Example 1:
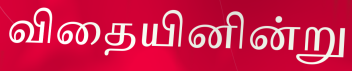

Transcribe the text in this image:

விதையினின்று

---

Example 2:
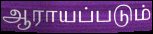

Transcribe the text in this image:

ஆராயப்படும்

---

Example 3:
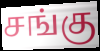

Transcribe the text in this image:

சங்கு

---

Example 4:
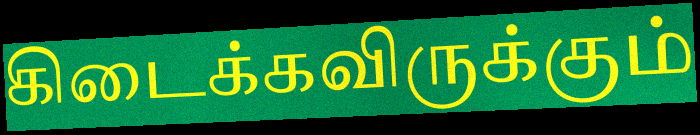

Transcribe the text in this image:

கிடைக்கவிருக்கும்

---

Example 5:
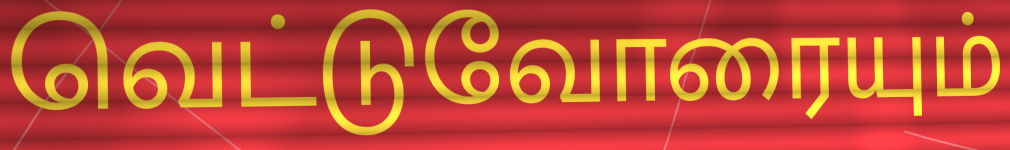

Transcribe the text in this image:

வெட்டுவோரையும்